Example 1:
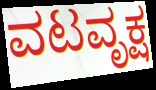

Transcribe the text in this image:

ವಟವೃಕ್ಷ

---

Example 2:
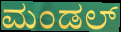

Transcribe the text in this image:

ಮಂಡಲ್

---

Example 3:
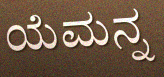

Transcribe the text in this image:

ಯೆಮನ್ನ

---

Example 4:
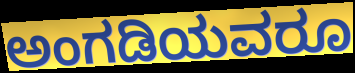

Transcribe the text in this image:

ಅಂಗಡಿಯವರೂ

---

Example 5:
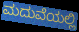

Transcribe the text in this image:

ಮದುವೆಯಲ್ಲಿ